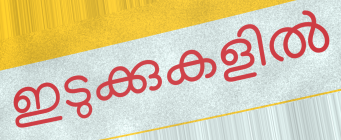
ഇടുക്കുകളിൽ